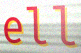
ell